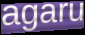
agaru